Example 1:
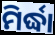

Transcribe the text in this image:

ମିର୍ଦ୍ଧା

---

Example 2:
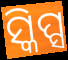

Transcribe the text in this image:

ସ୍କିପ୍ସ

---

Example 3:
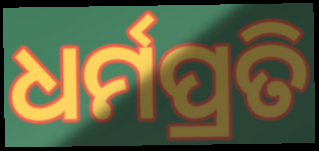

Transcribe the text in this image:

ଧର୍ମପ୍ରତି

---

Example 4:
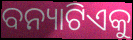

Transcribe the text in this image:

ବନ୍ୟାଟିଏକୁ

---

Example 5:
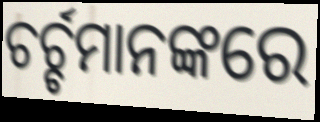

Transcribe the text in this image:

ଚର୍ଚ୍ଚମାନଙ୍କରେ